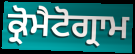
ਕ੍ਰੋਮੈਟੋਗ੍ਰਾਮ